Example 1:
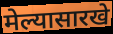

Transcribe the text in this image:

मेल्यासारखे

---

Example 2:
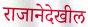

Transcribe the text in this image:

राजानेदेखील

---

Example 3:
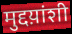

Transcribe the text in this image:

मुद्दय़ांशी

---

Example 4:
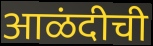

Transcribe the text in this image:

आळंदीची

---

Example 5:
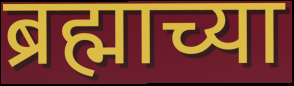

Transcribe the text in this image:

ब्रह्माच्या